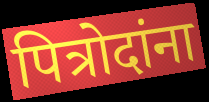
पित्रोदांना